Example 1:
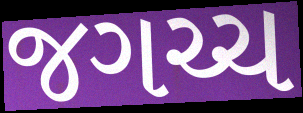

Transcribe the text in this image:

જગચ્ચ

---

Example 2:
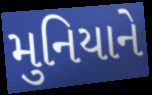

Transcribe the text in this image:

મુનિયાને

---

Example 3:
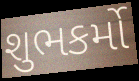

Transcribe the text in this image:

શુભકર્મો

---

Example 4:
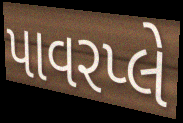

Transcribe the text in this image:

પાવરપ્લે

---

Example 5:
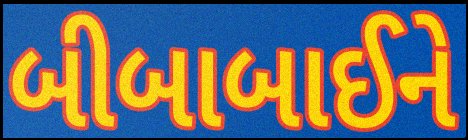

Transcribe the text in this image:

બીબાબાઈને